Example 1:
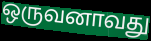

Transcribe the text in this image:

ஒருவனாவது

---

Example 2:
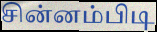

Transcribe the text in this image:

சின்னம்பிடி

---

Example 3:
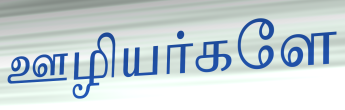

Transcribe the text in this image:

ஊழியர்களே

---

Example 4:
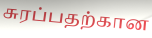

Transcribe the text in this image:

சுரப்பதற்கான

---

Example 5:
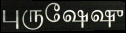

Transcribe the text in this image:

புருஷேஷு